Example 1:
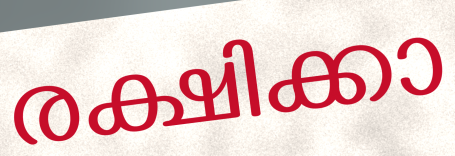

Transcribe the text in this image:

രക്ഷിക്കാ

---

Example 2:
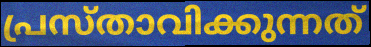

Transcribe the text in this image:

പ്രസ്താവിക്കുന്നത്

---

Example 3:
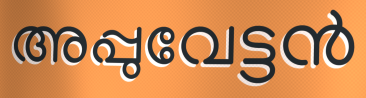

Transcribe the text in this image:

അപ്പുവേട്ടൻ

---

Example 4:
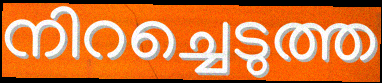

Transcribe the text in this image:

നിറച്ചെടുത്ത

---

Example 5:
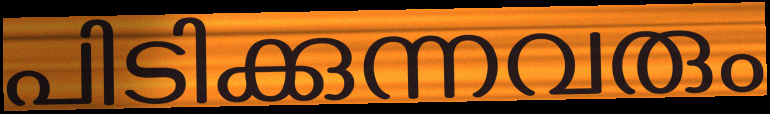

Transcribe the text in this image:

പിടിക്കുന്നവരും